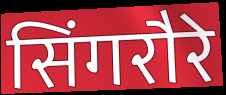
सिंगरौरे